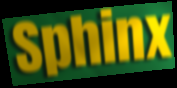
Sphinx